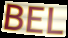
BEL